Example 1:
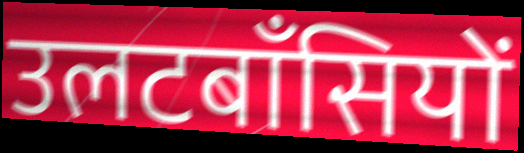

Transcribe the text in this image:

उलटबाँसियों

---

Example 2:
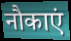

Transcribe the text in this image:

नौकाएं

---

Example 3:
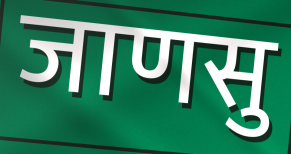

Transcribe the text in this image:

जाणसु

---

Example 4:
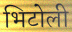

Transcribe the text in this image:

भिटोली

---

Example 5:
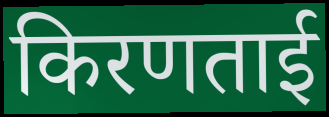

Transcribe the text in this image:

किरणताई